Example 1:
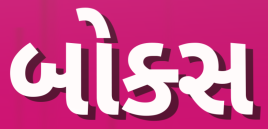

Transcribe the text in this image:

બોક્સ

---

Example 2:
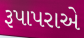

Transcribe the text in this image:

રૂપાપરાએ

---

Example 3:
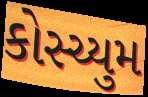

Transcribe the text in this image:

કોસ્ચ્યુમ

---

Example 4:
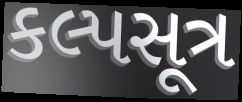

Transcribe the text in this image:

કલ્પસૂત્ર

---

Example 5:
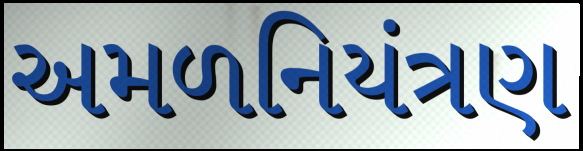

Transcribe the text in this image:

અમળનિયંત્રણ